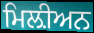
ਮਿਲ਼ੀਅਨ